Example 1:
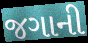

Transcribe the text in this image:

જગાની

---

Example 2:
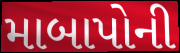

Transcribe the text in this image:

માબાપોની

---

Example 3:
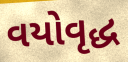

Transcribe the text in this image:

વયોવૃદ્ધ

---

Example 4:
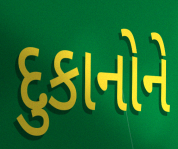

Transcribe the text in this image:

દુકાનોને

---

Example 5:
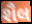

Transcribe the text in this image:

શૈલ